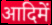
आदिमें